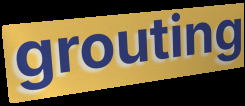
grouting